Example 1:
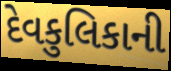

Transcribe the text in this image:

દેવકુલિકાની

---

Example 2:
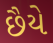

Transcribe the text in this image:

છૈયે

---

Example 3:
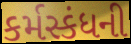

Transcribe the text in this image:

કર્મસ્કંધની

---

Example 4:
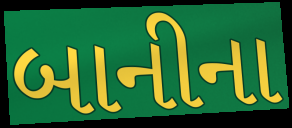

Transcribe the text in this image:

બાનીના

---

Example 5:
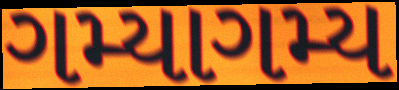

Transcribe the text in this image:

ગમ્યાગમ્ય